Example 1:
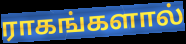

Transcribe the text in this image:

ராகங்களால்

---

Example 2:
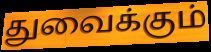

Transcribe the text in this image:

துவைக்கும்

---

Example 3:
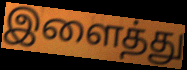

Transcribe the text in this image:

இளைத்து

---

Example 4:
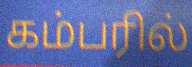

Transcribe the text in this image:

கம்பரில்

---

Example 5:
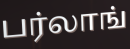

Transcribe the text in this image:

பர்லாங்